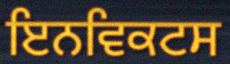
ਇਨਵਿਕਟਸ